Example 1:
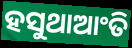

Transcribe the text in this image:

ହସୁଥାଆଂତି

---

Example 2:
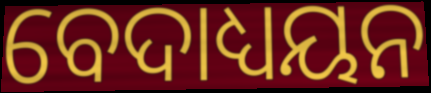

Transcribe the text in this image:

ବେଦାଧ୍ୟୟନ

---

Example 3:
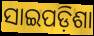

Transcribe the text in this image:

ସାଇପଡ଼ିଶା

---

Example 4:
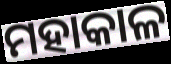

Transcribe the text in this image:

ମହାକାଳ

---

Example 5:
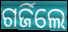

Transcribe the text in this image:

ଗର୍ଜିଲେ